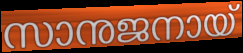
സാനുജനായ്